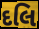
દલિ